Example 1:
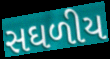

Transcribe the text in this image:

સઘળીય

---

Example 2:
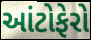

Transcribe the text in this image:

આંટોફેરો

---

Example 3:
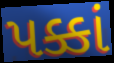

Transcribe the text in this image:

પક્કાં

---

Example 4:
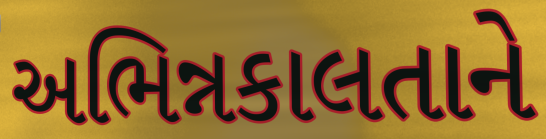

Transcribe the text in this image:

અભિન્નકાલતાને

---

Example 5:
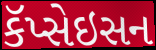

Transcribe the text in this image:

કૅપ્સેઇસન